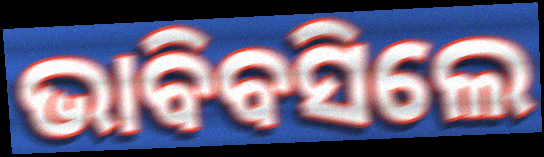
ଭାବିବସିଲେ